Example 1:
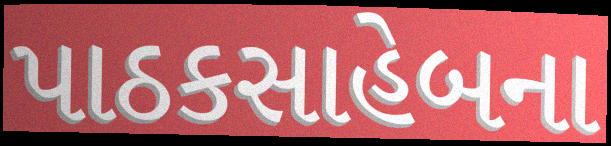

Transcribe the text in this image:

પાઠકસાહેબના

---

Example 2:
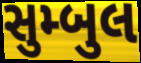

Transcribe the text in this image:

સુમ્બુલ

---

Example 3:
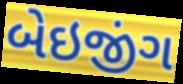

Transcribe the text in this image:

બેઇજીંગ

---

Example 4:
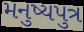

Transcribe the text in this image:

મનુષ્યપુત્ર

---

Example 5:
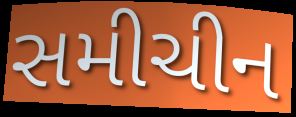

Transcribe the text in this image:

સમીચીન